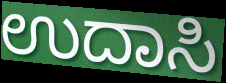
ಉದಾಸಿ